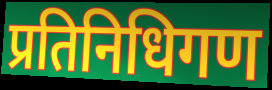
प्रतिनिधिगण